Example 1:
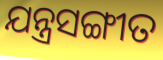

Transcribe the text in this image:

ଯନ୍ତ୍ରସଙ୍ଗୀତ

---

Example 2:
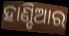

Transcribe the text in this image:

ହାଣ୍ଡିଆର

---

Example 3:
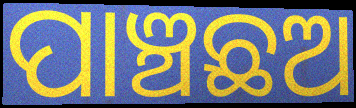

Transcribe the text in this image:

ପାଞ୍ଚଛଅ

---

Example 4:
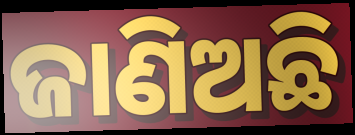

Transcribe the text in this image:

ଜାଣିଅଛି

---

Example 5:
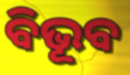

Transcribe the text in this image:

ବିଭୂବ